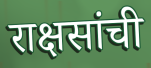
राक्षसांची